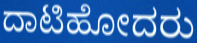
ದಾಟಿಹೋದರು